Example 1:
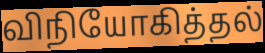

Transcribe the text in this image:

விநியோகித்தல்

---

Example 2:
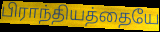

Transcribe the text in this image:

பிராந்தியத்தையே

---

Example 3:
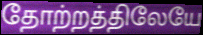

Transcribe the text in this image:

தோற்றத்திலேயே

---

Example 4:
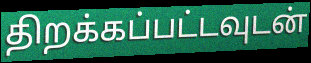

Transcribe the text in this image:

திறக்கப்பட்டவுடன்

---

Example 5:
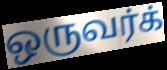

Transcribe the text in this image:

ஒருவர்க்